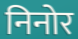
निनोर